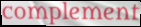
complement